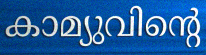
കാമ്യുവിന്റെ